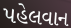
પહેલવાન